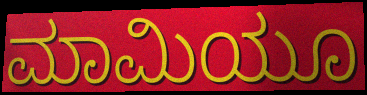
ಮಾಮಿಯೂ